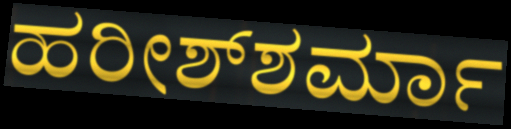
ಹರೀಶ್‌ಶರ್ಮಾ